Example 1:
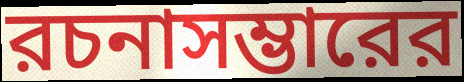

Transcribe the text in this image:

রচনাসম্ভারের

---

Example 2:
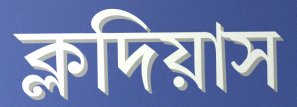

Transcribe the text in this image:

ক্লদিয়াস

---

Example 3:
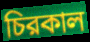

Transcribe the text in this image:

চিরকাল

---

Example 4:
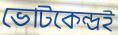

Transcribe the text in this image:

ভোটকেন্দ্রই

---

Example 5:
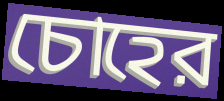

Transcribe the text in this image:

চোহের